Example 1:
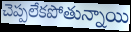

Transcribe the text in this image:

చెప్పలేకపోతున్నాయి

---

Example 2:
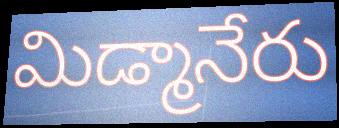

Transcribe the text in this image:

మిడ్మానేరు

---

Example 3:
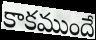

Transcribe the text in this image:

కాకముందే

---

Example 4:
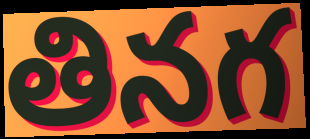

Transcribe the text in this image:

తినగ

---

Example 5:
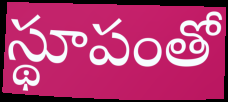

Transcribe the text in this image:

స్థూపంతో